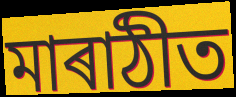
মাৰাঠীত